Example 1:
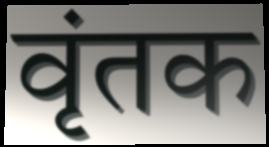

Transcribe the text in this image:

वृंतक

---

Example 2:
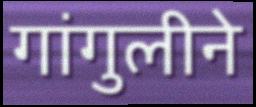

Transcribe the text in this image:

गांगुलीने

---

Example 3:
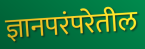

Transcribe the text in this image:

ज्ञानपरंपरेतील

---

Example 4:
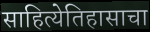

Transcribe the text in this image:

साहित्येतिहासाचा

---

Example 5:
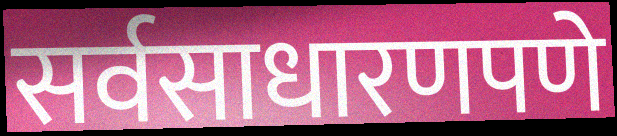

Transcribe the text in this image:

सर्वसाधारणपणे